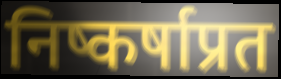
निष्कर्षाप्रत